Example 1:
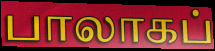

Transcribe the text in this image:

பாலாகப்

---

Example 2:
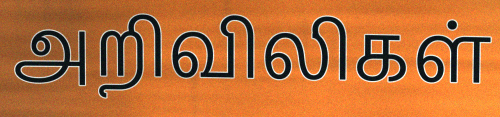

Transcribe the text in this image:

அறிவிலிகள்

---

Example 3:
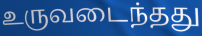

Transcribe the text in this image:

உருவடைந்தது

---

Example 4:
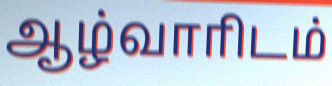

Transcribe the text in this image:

ஆழ்வாரிடம்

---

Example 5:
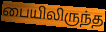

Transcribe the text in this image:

பையிலிருந்த